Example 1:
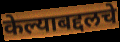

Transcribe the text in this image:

केल्याबद्दलचे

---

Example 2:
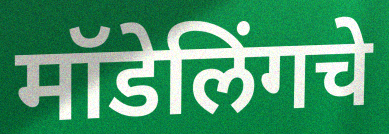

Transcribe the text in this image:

मॉडेलिंगचे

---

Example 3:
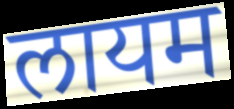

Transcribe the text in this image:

लायम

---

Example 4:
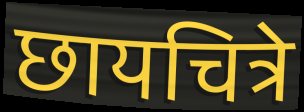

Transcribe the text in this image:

छायचित्रे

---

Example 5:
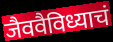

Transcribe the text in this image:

जैववैविध्याचं